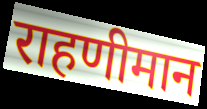
राहणीमान